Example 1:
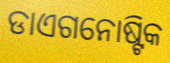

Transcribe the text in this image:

ଡାଏଗନୋଷ୍ଟିକ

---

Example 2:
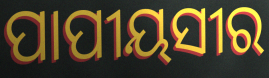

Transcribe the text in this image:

ପାପୀୟସୀର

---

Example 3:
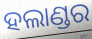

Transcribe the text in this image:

ହଲାଣ୍ଡର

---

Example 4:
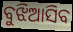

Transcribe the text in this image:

ବୁଝିଆସିବ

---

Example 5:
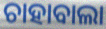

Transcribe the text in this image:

ଚାହାବାଲା